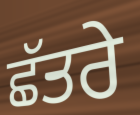
ਛੱਤਰੇ